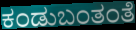
ಕಂಡುಬಂತಂತೆ